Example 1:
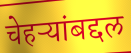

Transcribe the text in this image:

चेहऱ्यांबद्दल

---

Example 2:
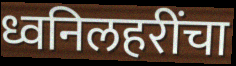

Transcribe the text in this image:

ध्वनिलहरींचा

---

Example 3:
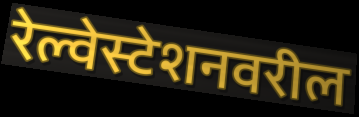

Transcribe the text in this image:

रेल्वेस्टेशनवरील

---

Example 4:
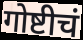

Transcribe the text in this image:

गोष्टीचं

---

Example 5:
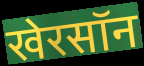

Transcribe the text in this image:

खेरसॉन